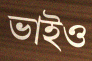
ভাইও